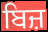
ਬਿਜ਼